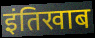
इंतिखाब